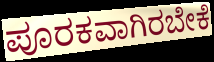
ಪೂರಕವಾಗಿರಬೇಕೆ